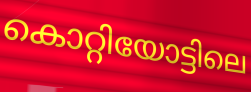
കൊറ്റിയോട്ടിലെ